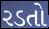
રડતો